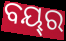
ବୟ୍‌ର